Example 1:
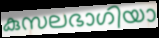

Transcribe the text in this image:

കുസലഭാഗിയാ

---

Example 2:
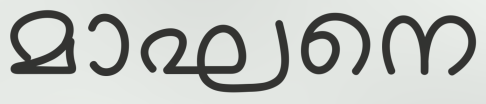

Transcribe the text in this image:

മാഘനെ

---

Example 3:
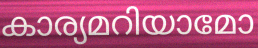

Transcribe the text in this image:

കാര്യമറിയാമോ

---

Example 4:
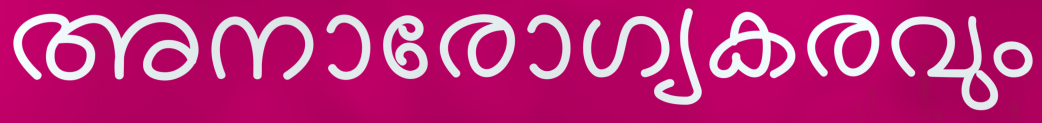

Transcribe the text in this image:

അനാരോഗ്യകരവും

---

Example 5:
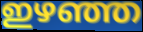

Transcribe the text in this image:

ഇഴഞ്ഞ